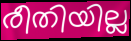
രീതിയില്ല